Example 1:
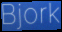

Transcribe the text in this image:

Bjork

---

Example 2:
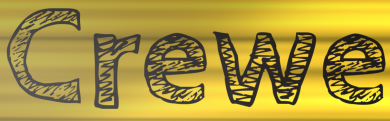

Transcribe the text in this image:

Crewe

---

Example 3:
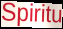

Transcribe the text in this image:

Spiritu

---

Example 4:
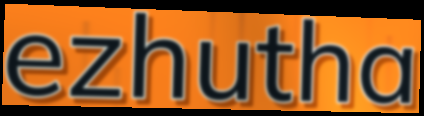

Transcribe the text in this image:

ezhutha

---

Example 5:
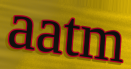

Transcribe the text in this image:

aatm